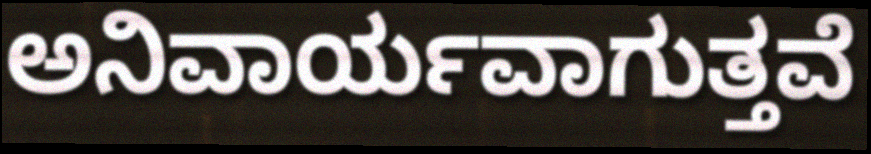
ಅನಿವಾರ್ಯವಾಗುತ್ತವೆ